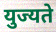
युज्यते